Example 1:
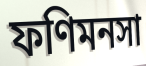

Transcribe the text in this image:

ফণিমনসা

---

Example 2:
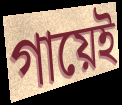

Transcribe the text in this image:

গায়েই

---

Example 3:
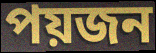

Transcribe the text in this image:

পয়জন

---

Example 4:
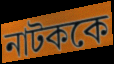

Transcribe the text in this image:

নাটককে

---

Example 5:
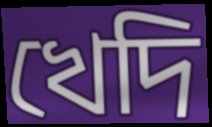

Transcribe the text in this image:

খেদি